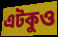
এটকুও